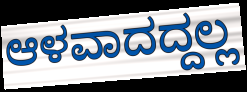
ಆಳವಾದದ್ದಲ್ಲ